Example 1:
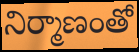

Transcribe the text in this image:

నిర్మాణంతో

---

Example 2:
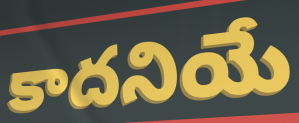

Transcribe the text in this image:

కాదనియే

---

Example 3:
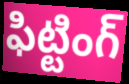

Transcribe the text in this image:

ఫిట్టింగ్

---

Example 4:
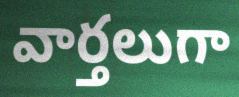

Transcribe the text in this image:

వార్తలుగా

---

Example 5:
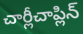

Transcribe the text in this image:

చార్లీచాప్లిన్